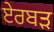
ਏਰਬੜ